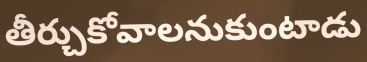
తీర్చుకోవాలనుకుంటాడు